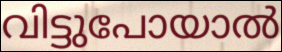
വിട്ടുപോയാൽ